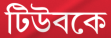
টিউবকে